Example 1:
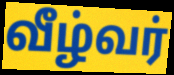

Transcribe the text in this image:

வீழ்வர்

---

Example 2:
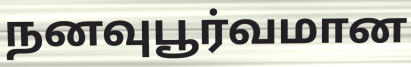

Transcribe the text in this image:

நனவுபூர்வமான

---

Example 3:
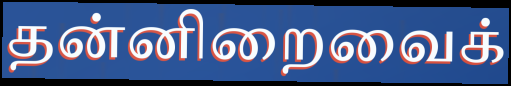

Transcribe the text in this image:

தன்னிறைவைக்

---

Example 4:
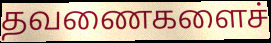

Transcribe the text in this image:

தவணைகளைச்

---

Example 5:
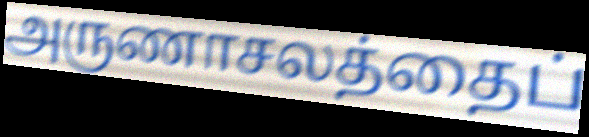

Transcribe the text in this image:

அருணாசலத்தைப்